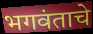
भगवंताचे